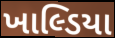
ખાલ્ડિયા